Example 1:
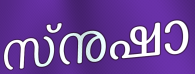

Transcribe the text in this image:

സ്നുഷാ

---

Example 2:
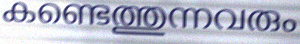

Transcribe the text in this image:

കണ്ടെത്തുന്നവരും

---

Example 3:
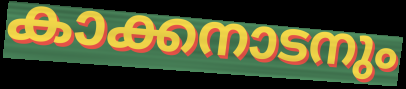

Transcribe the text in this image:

കാക്കനാടനും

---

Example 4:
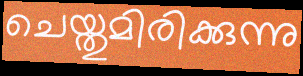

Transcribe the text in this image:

ചെയ്തുമിരിക്കുന്നു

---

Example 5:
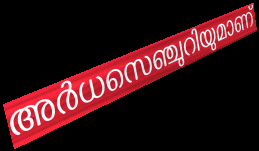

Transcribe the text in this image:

അർധസെഞ്ചുറിയുമാണ്